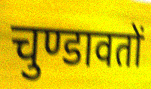
चुण्डावतों